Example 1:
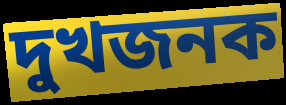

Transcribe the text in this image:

দুখজনক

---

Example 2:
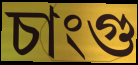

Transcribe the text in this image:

চাংগু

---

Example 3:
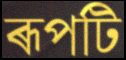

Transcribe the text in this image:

ৰূপটি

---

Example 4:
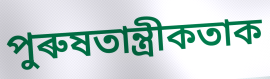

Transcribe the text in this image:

পুৰুষতান্ত্ৰীকতাক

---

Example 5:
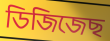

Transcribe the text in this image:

ডিজিজেছ